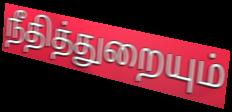
நீதித்துறையும்